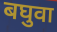
बघुवा